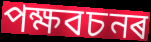
পক্ষবচনৰ